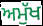
ਅਮੁੱਖ